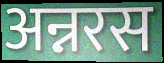
अन्नरस